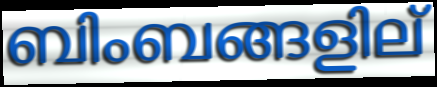
ബിംബങ്ങളില്